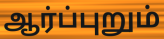
ஆர்ப்புறும்